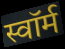
स्वॉर्म